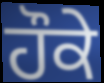
ਹੌਕੇ